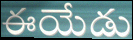
ఈయేడు